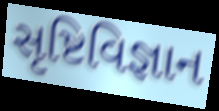
સૃષ્ટિવિજ્ઞાન